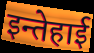
इन्तेहाई